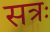
सत्रः